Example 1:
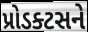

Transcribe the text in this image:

પ્રોડક્ટસને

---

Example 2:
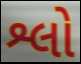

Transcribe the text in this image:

શ્લો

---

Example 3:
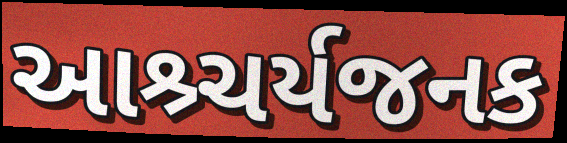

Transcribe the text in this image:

આશ્ર્ચર્યજનક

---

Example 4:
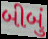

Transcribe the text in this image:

બીબું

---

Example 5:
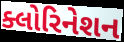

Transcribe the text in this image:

ક્લોરિનેશન